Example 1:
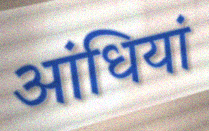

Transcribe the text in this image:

आंधियां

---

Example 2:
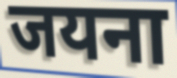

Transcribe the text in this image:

जयना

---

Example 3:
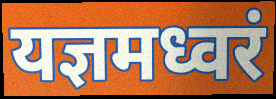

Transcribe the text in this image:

यज्ञमध्वरं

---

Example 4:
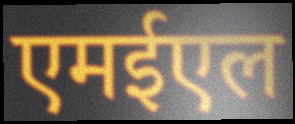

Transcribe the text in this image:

एमईएल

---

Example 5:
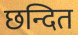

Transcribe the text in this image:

छन्दित